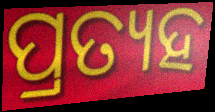
ପ୍ରତ୍ୟହ